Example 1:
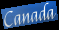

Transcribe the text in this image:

Canada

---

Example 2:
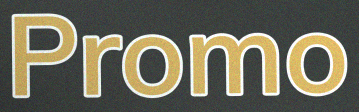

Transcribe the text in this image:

Promo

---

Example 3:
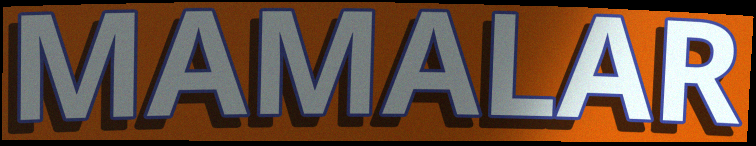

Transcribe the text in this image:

MAMALAR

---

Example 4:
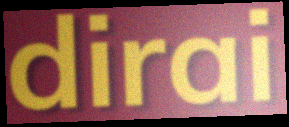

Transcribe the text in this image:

dirai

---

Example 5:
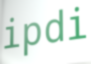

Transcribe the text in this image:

ipdi